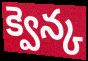
క్వెన్క